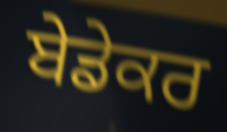
ਬੇਡੇਕਰ